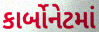
કાર્બોનેટમાં